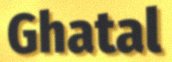
Ghatal